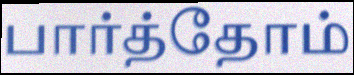
பார்த்தோம்